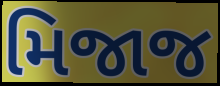
મિજાજ